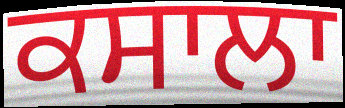
ਕਸਾਲਾ